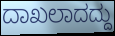
ದಾಖಲಾದದ್ದು